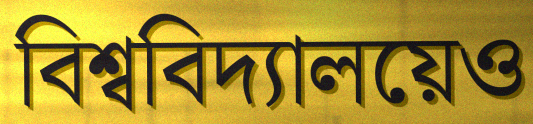
বিশ্ববিদ্যালয়েও